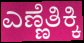
ಎಣ್ಣೆತಿಕ್ಕಿ